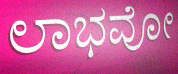
ಲಾಭವೋ